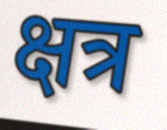
क्षत्र